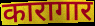
कारागार